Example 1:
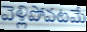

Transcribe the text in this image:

వెళ్లిపోవటమే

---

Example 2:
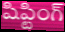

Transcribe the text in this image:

షిప్టింగ్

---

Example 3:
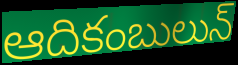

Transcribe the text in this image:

ఆదికంబులున్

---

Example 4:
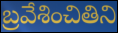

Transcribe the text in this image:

బ్రవేశించితిని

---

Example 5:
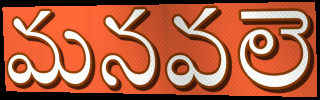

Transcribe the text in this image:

మనవలె